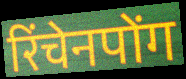
रिंचेनपोंग